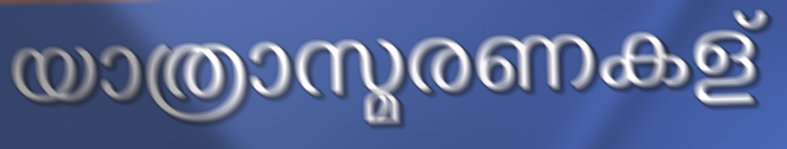
യാത്രാസ്മരണകള്